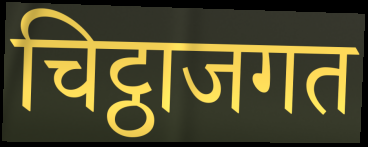
चिट्ठाजगत